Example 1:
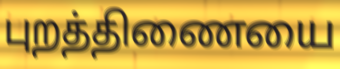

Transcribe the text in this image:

புறத்திணையை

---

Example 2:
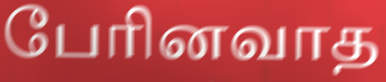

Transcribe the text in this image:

பேரினவாத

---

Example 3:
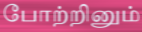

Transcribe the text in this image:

போற்றினும்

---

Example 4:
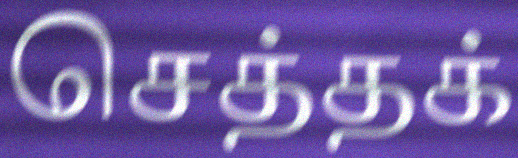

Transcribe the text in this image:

செத்தக்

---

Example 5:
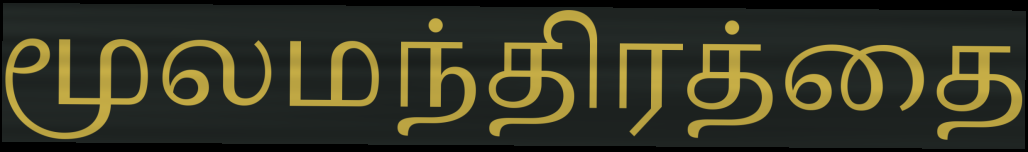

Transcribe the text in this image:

மூலமந்திரத்தை